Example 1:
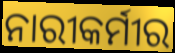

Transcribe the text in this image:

ନାରୀକର୍ମୀର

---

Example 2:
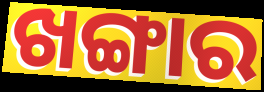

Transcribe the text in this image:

ଖଙ୍ଗାର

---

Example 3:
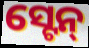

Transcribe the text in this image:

ସ୍ଟେନ୍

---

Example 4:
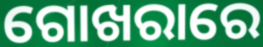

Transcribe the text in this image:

ଗୋଖରାରେ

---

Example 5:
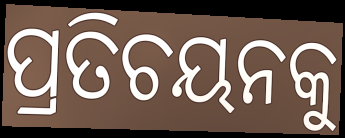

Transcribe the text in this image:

ପ୍ରତିଚୟନକୁ